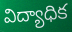
విద్యాధిక